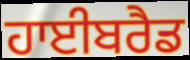
ਹਾਈਬਰੈਡ